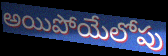
అయిపోయేలోపు